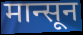
मान्सून